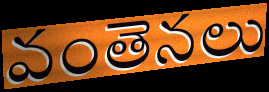
వంతెనలు